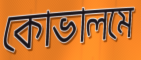
কোভালমে